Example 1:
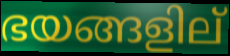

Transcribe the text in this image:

ഭയങ്ങളില്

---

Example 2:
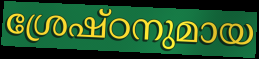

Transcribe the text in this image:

ശ്രേഷ്ഠനുമായ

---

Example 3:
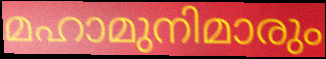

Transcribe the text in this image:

മഹാമുനിമാരും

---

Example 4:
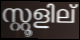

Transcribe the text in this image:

സ്റ്റൂളില്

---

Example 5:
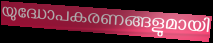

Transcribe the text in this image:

യുദ്ധോപകരണങ്ങളുമായി